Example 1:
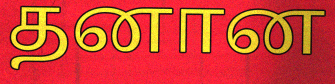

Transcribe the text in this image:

தனான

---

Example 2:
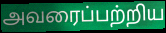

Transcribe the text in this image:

அவரைப்பற்றிய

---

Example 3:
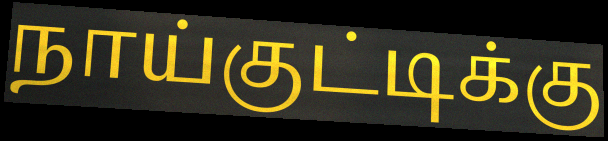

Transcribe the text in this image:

நாய்குட்டிக்கு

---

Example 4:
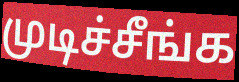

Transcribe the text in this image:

முடிச்சீங்க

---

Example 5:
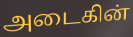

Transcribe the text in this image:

அடைகின்